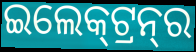
ଇଲେକ୍‍ଟ୍ରନ୍‍ର